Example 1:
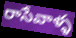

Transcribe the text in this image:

రాసేవాళ్ళ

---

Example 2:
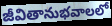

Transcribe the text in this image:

జీవితానుభవాలలో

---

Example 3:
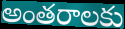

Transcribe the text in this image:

అంతరాలకు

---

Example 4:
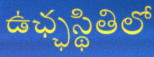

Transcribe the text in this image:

ఉఛ్ఛస్థితిలో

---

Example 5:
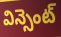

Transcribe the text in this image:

విన్సెంట్